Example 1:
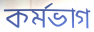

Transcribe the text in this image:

কৰ্মভাগ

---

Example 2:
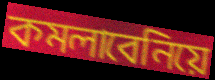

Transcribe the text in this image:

কমলাবেনিয়ে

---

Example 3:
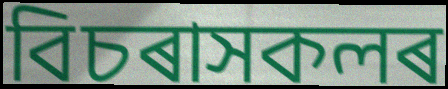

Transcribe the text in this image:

বিচৰাসকলৰ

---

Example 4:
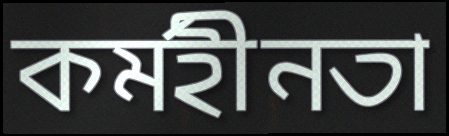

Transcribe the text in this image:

কৰ্মহীনতা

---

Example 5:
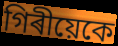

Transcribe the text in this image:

গিৰীয়েকে